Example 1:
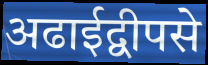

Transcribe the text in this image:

अढाईद्वीपसे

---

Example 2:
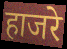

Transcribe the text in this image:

हाजरे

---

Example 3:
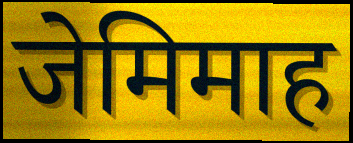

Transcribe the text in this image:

जेमिमाह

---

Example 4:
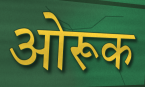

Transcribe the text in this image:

ओरूक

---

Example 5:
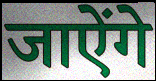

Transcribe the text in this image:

जाऐंगे